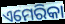
ଏମେରିକା